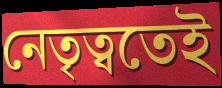
নেতৃত্বতেই